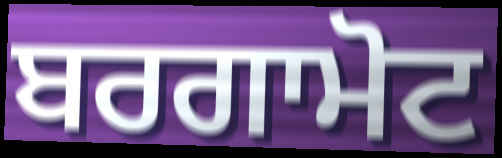
ਬਰਗਾਮੋਟ